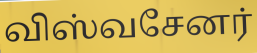
விஸ்வசேனர்